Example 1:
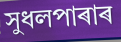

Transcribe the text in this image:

সুধলপাৰাৰ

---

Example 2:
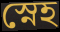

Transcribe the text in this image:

স্নেহ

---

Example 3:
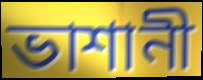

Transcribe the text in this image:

ভাশানী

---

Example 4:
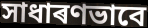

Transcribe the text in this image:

সাধাৰণভাবে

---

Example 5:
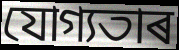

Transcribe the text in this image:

যোগ্যতাৰ